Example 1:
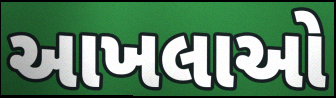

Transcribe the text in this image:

આખલાઓ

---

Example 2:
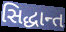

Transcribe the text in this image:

સિદ્ધાન્ત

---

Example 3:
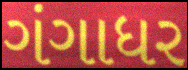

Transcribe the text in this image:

ગંગાધર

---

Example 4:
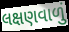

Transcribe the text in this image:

લક્ષણવાળું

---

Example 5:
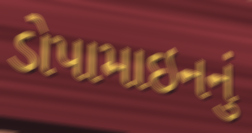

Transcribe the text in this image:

ડોપામાઇનનું